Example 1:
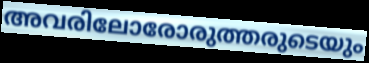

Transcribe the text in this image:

അവരിലോരോരുത്തരുടെയും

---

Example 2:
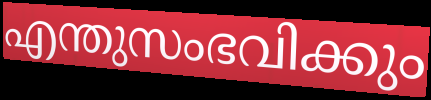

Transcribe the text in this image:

എന്തുസംഭവിക്കും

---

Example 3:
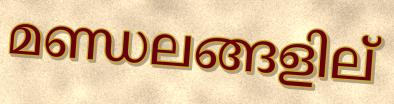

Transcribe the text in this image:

മണ്ഡലങ്ങളില്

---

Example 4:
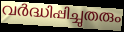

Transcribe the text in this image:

വർദ്ധിപ്പിച്ചുതരും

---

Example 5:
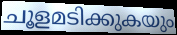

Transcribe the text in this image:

ചൂളമടിക്കുകയും